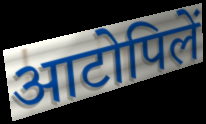
आटोपिलें